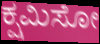
ಕ್ಷಮಿಸೋ